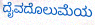
ದೈವದೊಲುಮೆಯ